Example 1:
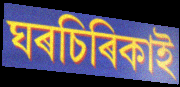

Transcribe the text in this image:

ঘৰচিৰিকাই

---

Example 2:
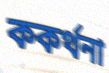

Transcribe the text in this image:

ককৰ্থনা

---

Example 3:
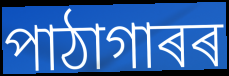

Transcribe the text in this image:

পাঠাগাৰৰ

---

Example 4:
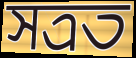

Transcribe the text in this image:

সত্ৰত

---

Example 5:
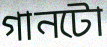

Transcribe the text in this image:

গানটো